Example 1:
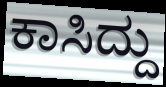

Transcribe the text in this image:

ಕಾಸಿದ್ದು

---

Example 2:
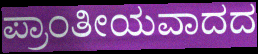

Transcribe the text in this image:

ಪ್ರಾಂತೀಯವಾದದ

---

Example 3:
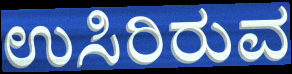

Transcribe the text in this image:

ಉಸಿರಿರುವ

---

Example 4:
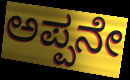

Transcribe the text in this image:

ಅಪ್ಪನೇ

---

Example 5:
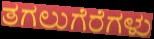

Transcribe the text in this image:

ತಗಲುಗೆರೆಗಳು